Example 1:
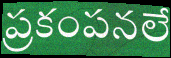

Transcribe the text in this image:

ప్రకంపనలే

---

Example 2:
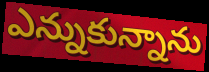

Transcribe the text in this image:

ఎన్నుకున్నాను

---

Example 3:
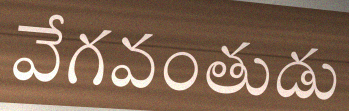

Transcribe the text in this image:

వేగవంతుడు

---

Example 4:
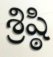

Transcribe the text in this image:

శ్రిష్ఠి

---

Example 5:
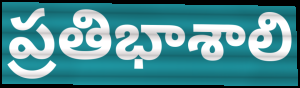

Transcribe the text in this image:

ప్రతిభాశాలి